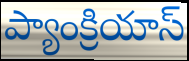
ప్యాంక్రియాస్